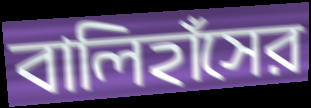
বালিহাঁসের